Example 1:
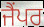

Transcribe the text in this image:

ਜੈਂਪਰ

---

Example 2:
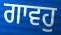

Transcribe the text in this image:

ਗਾਵਹੁ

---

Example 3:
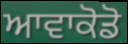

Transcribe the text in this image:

ਆਵਾਕੋਡੋ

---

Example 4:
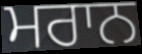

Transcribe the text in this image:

ਮਰਾਨ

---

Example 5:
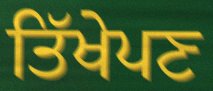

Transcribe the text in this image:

ਤਿੱਖੇਪਣ